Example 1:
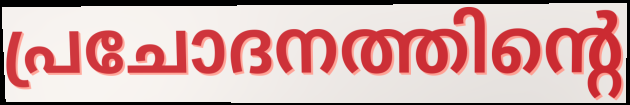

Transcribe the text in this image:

പ്രചോദനത്തിന്റെ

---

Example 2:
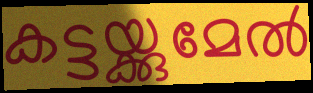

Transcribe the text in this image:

കട്ടയ്ക്കുമേൽ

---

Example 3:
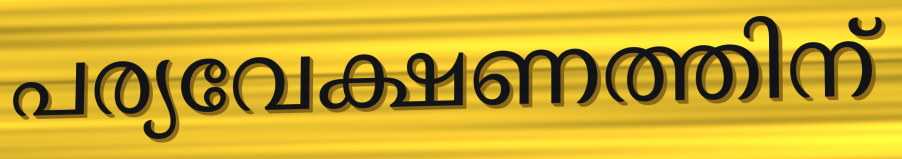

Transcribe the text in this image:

പര്യവേക്ഷണത്തിന്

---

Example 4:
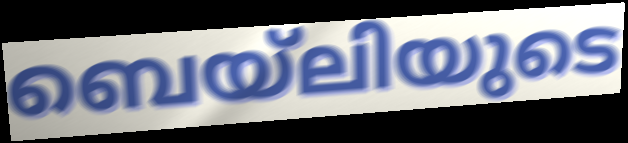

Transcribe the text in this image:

ബെയ്ലിയുടെ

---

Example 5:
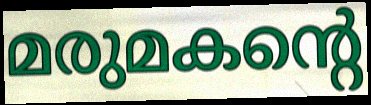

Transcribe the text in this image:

മരുമകന്റെ